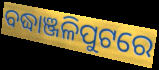
ବଦ୍ଧାଞ୍ଜଳିପୁଟରେ